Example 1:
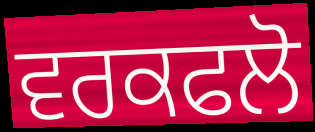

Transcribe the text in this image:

ਵਰਕਫਲੋ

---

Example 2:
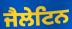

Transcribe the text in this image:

ਜੈਲੇਟਿਨ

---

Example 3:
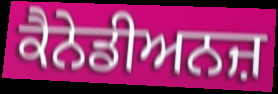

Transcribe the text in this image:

ਕੈਨੇਡੀਅਨਜ਼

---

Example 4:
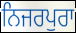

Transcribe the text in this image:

ਨਿਜਰਪੁਰਾ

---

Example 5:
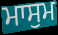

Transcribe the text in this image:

ਮਾਸੁਮ